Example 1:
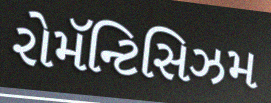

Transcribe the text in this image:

રોમૅન્ટિસિઝમ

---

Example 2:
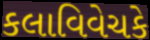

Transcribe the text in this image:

કલાવિવેચકે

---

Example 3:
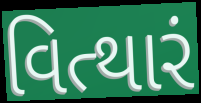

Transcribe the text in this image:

વિત્થારં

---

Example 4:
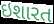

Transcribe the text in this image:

ઇશારત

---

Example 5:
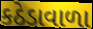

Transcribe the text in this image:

કઠેડાવાળા